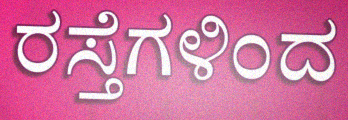
ರಸ್ತೆಗಳಿಂದ